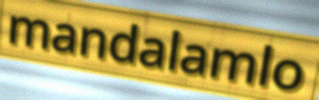
mandalamlo